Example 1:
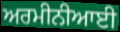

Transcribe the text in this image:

ਅਰਮੀਨੀਆਈ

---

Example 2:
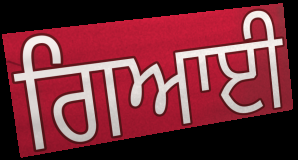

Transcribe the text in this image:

ਗਿਆਈ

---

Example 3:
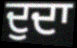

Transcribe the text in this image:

ਦੁਦਾ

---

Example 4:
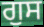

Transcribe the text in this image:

ਗੁਸ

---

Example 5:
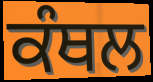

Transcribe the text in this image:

ਕੰਥਲ